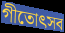
গীতোৎসব